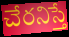
చేరనిస్తే